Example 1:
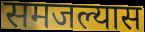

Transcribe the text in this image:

समजल्यास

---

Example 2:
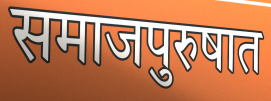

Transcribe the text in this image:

समाजपुरुषात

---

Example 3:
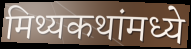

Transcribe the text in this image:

मिथ्यकथांमध्ये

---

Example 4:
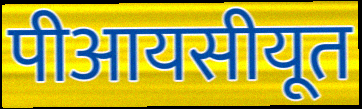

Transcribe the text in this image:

पीआयसीयूत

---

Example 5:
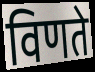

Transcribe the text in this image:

विणते